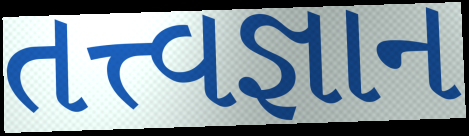
તત્ત્વજ્ઞાન